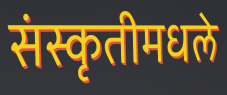
संस्कृतीमधले